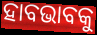
ହାବଭାବକୁ